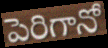
పెరిగానో